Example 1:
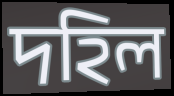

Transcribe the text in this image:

দহিল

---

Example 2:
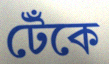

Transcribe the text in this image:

টেঁকে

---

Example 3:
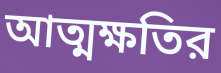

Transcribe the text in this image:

আত্মক্ষতির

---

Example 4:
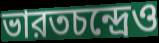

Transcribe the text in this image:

ভারতচন্দ্রেও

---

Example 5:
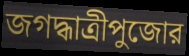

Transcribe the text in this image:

জগদ্ধাত্রীপুজোর